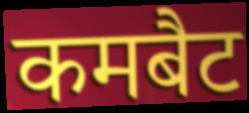
कमबैट